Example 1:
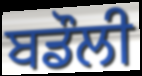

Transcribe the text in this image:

ਬਡੌਲੀ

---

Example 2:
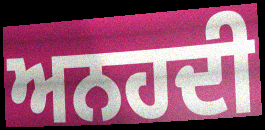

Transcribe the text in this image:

ਅਨਹਦੀ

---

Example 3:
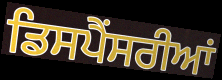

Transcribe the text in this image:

ਡਿਸਪੈਂਸਰੀਆਂ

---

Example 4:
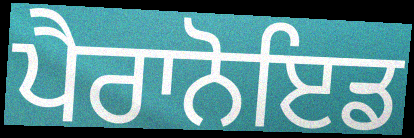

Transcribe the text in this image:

ਪੈਰਾਨੋਇਡ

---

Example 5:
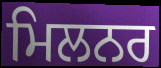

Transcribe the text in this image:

ਮਿਲਨਰ